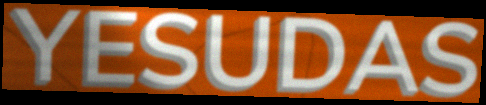
YESUDAS